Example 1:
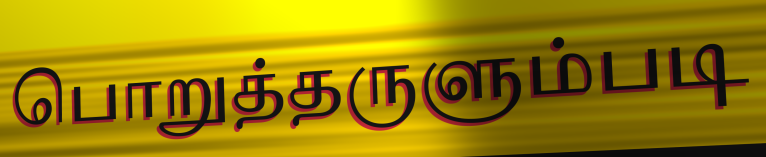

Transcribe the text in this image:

பொறுத்தருளும்படி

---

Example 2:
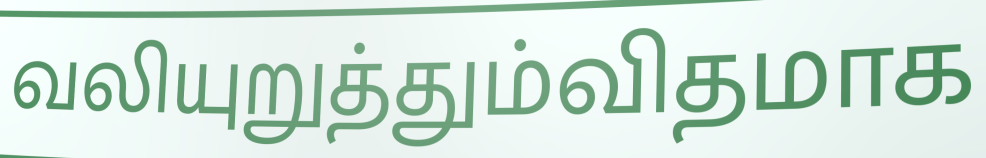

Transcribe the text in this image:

வலியுறுத்தும்விதமாக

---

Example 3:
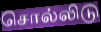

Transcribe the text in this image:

சொல்லிடு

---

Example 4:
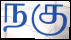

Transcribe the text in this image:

நகு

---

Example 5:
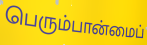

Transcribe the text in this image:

பெரும்பான்மைப்